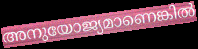
അനുയോജ്യമാണെങ്കിൽ